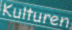
Kulturen